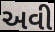
અવી